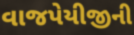
વાજપેયીજીની